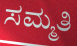
ಸಮ್ಮತಿ